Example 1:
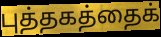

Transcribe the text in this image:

புத்தகத்தைக்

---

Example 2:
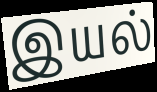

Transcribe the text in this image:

இயல்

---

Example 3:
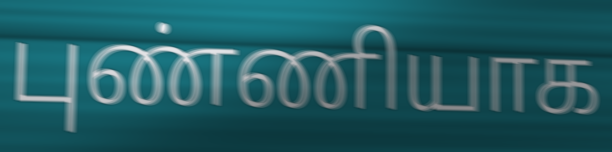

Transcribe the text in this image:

புண்ணியாக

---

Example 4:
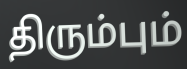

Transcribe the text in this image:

திரும்பும்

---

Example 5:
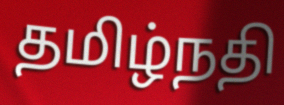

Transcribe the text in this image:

தமிழ்நதி